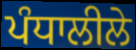
ਪੰਧਾਲੀਲੇ